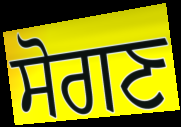
ਸੋਗਣ